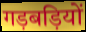
गड़बड़ियों